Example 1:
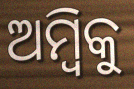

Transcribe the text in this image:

ଅମ୍ବିକୁ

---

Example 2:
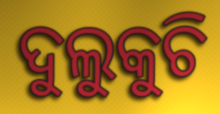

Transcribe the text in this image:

ଦୁଲୁକୁଚି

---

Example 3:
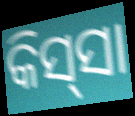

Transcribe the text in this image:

କିସ୍‍ସା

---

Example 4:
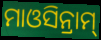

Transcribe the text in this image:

ମାଓସିନ୍ରାମ୍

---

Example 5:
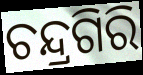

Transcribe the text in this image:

ଚନ୍ଦ୍ରଗିରି